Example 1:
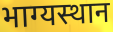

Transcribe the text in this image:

भाग्यस्थान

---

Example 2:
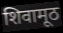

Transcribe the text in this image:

शिवामूठ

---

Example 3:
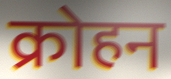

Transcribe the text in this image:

क्रोहन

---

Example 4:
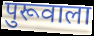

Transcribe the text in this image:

पुरूवाला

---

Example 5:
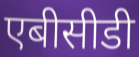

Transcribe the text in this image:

एबीसीडी